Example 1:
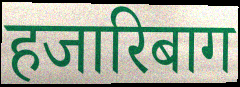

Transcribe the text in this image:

हजारिबाग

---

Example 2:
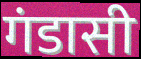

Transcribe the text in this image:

गंडासी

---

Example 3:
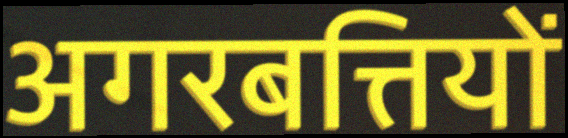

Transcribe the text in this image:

अगरबत्तियों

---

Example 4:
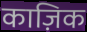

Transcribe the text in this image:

काज़िक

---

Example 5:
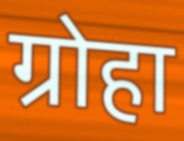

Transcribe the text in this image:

ग्रोहा